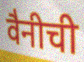
वैनीची